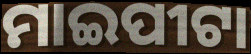
ମାଇପୀଟା